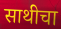
साथीचा